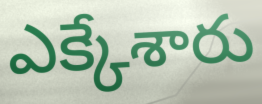
ఎక్కేశారు